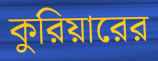
কুরিয়ারের